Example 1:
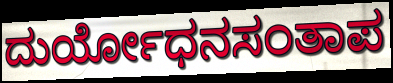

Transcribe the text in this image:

ದುರ್ಯೋಧನಸಂತಾಪ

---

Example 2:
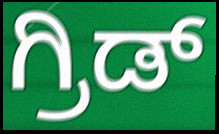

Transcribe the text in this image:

ಗ್ರಿಡ್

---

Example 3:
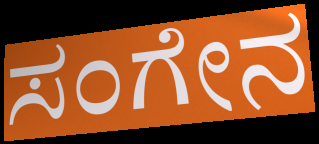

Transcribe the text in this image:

ಸಂಗೇನ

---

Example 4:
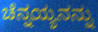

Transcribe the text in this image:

ಚೆನ್ನಯ್ಯನನ್ನು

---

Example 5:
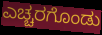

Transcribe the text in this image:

ಎಚ್ಚರಗೊಂಡು